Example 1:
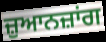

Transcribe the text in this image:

ਜ਼ੁਆਨਜ਼ਾਂਗ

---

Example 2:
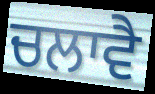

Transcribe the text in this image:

ਚਲਾਵੈ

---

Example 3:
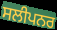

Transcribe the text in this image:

ਸਲੀਪਨਰ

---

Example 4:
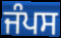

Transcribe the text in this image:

ਜੰਪਸ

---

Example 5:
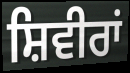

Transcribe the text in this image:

ਸ਼ਿਵੀਰਾਂ